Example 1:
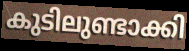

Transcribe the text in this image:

കുടിലുണ്ടാക്കി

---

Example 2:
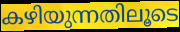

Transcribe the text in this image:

കഴിയുന്നതിലൂടെ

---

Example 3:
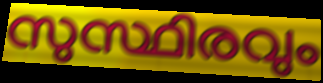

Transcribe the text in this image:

സുസ്ഥിരവും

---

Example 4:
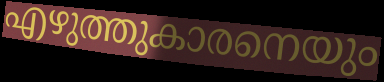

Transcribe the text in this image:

എഴുത്തുകാരനെയും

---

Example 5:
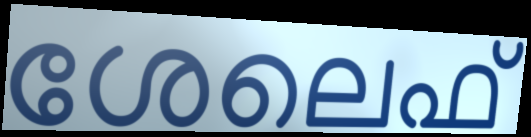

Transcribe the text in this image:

ശേലെഫ്